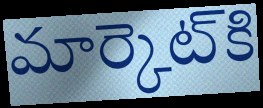
మార్కెట్‌కి